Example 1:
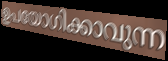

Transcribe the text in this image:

ഉപയോഗിക്കാവുന്ന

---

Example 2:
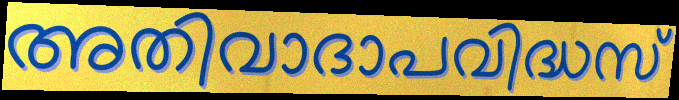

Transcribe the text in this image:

അതിവാദാപവിദ്ധസ്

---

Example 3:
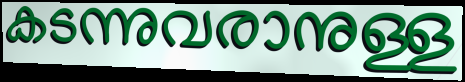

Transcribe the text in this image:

കടന്നുവരാനുള്ള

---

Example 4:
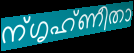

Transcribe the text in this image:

ന്ഗൃഹ്ണീതാ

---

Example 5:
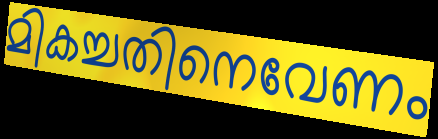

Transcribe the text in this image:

മികച്ചതിനെവേണം